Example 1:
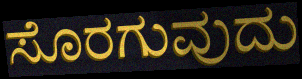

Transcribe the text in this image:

ಸೊರಗುವುದು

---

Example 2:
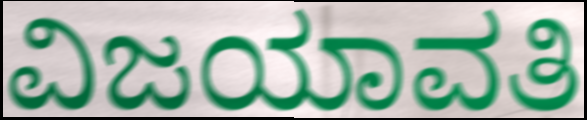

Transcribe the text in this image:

ವಿಜಯಾವತಿ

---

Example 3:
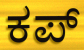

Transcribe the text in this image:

ಕಪ್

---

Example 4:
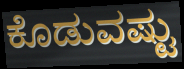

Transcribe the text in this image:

ಕೊಡುವಷ್ಟು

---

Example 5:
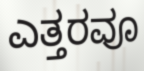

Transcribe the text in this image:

ಎತ್ತರವೂ